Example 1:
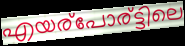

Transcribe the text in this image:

എയര്പോര്ട്ടിലെ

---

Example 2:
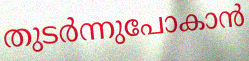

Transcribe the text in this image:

തുടർന്നുപോകാൻ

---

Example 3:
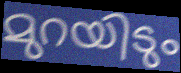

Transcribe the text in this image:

മുറയിടും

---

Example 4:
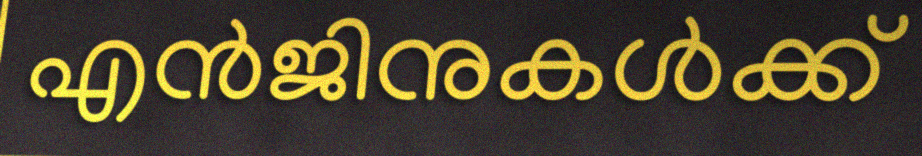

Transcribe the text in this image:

എൻജിനുകൾക്ക്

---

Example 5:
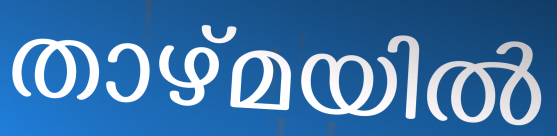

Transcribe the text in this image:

താഴ്മയിൽ